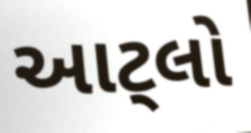
આટ્લો